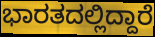
ಭಾರತದಲ್ಲಿದ್ದಾರೆ